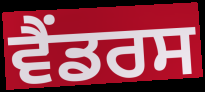
ਵੈਂਡਰਸ